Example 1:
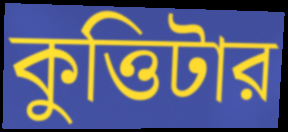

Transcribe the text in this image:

কুত্তিটার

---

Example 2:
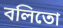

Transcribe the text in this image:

বলিতো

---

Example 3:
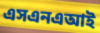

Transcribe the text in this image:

এসএনএআই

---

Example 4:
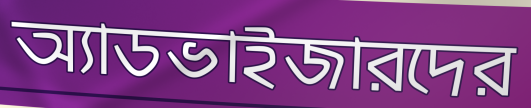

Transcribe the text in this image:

অ্যাডভাইজারদের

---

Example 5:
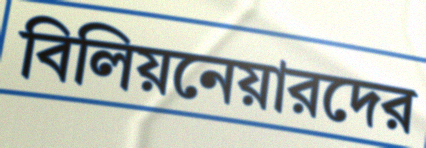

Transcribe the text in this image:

বিলিয়নেয়ারদের